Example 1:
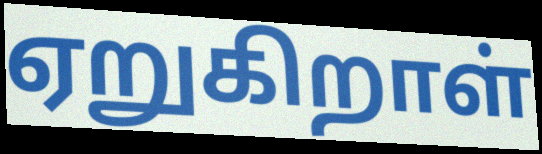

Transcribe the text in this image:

ஏறுகிறாள்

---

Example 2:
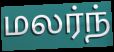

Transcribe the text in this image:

மலர்ந்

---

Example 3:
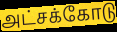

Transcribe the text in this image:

அட்சக்கோடு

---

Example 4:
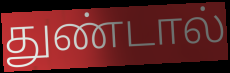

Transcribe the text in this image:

துண்டால்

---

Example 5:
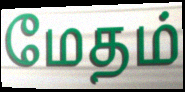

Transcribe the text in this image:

மேதம்